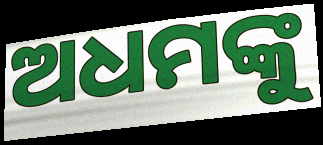
ଅଧମଙ୍କୁ